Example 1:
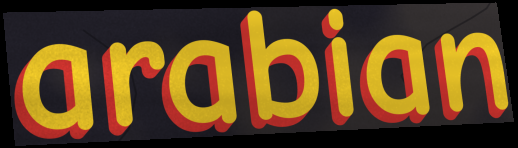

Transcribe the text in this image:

arabian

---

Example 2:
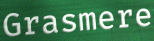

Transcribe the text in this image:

Grasmere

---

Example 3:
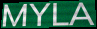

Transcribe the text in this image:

MYLA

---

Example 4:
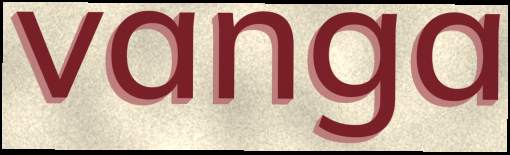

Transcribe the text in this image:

vanga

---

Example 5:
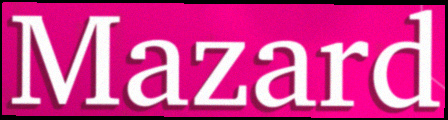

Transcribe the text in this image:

Mazard